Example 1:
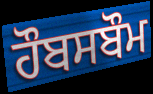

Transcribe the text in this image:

ਹੌਬਸਬੌਮ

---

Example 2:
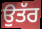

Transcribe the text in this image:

ਉਤੱਰ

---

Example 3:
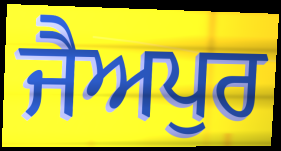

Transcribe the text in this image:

ਜੈਅਪੁਰ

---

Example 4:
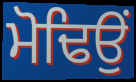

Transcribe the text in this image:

ਮੋਢਿਉਂ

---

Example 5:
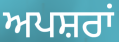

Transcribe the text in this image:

ਅਪਸ਼ਰਾਂ